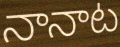
నానాట